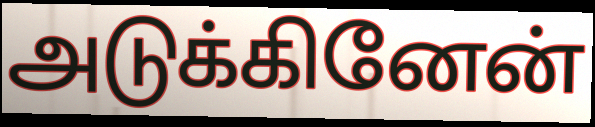
அடுக்கினேன்